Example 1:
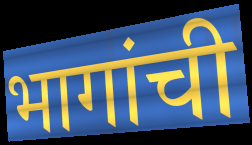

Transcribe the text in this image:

भागांची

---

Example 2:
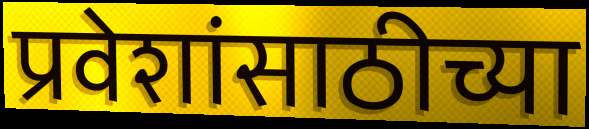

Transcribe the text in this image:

प्रवेशांसाठीच्या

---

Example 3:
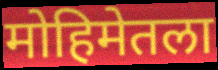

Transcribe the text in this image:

मोहिमेतला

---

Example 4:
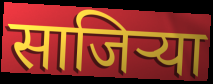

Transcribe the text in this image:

साजिर्‍या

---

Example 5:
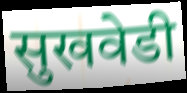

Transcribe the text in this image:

सुखवेडी